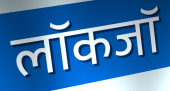
लॉकजॉ